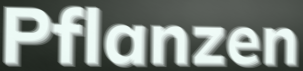
Pflanzen